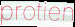
protien